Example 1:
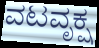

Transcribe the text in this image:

ವಟವೃಕ್ಷ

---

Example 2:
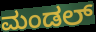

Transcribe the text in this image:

ಮಂಡಲ್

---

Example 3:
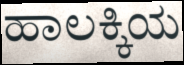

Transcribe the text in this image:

ಹಾಲಕ್ಕಿಯ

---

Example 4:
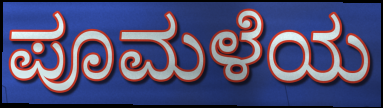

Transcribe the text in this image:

ಪೂಮಳೆಯ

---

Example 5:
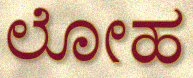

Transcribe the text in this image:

ಲೋಹ